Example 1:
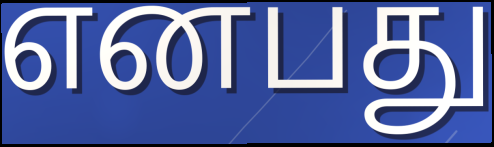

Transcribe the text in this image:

எனபது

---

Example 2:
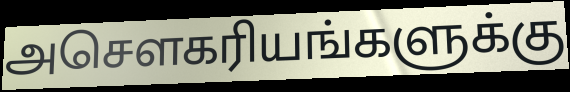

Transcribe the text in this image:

அசௌகரியங்களுக்கு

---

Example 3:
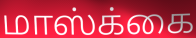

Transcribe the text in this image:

மாஸ்க்கை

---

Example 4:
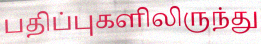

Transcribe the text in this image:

பதிப்புகளிலிருந்து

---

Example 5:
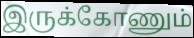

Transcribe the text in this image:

இருக்கோணும்